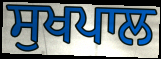
ਸੁਖਪਾਲ